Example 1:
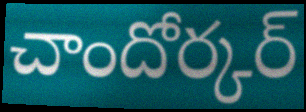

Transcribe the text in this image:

చాందోర్కర్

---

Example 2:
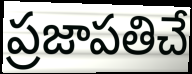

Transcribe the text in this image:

ప్రజాపతిచే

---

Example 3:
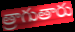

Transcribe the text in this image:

త్రాగుతారు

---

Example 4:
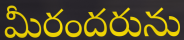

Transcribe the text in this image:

మీరందరును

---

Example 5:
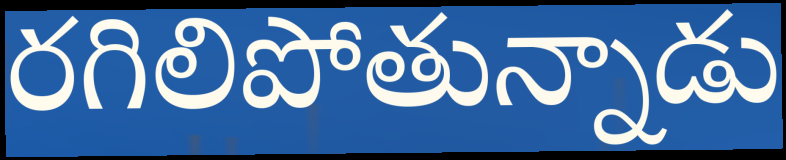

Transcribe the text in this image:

రగిలిపోతున్నాడు